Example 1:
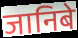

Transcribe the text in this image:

जानिबे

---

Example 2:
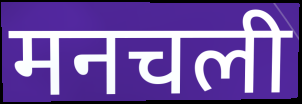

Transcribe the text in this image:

मनचली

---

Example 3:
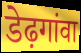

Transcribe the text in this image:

डेढ़गांवा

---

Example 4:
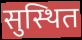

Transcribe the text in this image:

सुस्थित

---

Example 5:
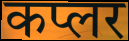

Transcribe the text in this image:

कप्लर